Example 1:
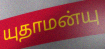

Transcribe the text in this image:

யுதாமன்யு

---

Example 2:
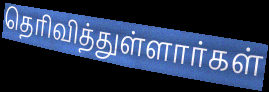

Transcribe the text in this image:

தெரிவித்துள்ளார்கள்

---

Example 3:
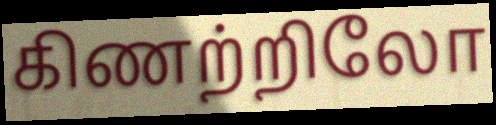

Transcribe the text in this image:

கிணற்றிலோ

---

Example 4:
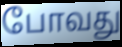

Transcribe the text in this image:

போவது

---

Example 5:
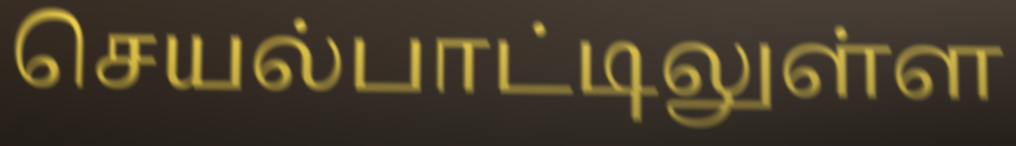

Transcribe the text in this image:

செயல்பாட்டிலுள்ள